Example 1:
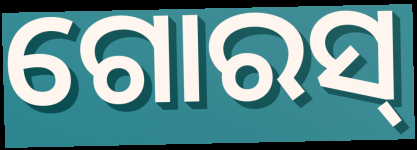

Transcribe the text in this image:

ଗୋରସ୍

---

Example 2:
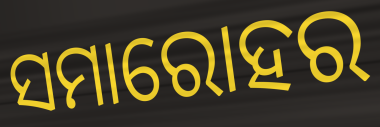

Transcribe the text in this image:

ସମାରୋହର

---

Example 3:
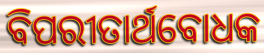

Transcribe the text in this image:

ବିପରୀତାର୍ଥବୋଧକ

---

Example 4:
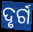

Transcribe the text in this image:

ଦୃର୍ଗ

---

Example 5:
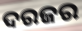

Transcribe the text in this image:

ଦରଜର